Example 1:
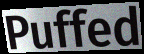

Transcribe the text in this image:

Puffed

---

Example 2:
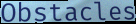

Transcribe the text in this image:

Obstacles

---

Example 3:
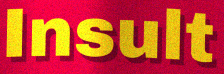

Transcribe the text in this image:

Insult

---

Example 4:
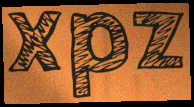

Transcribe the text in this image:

xpz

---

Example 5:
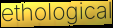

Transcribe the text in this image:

ethological